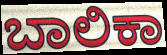
ಬಾಲಿಕಾ